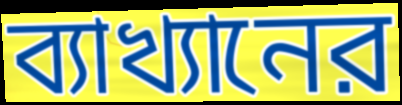
ব্যাখ্যানের